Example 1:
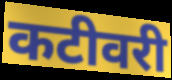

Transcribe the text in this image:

कटीवरी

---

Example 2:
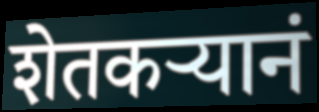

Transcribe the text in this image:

शेतकऱ्यानं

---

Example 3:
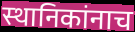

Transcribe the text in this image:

स्थानिकांनाच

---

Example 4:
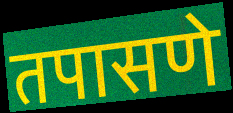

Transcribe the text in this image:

तपासणे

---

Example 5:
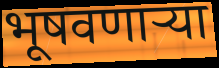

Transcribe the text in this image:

भूषवणाऱ्या